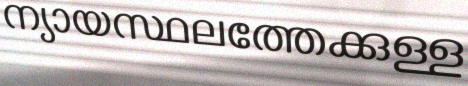
ന്യായസ്ഥലത്തേക്കുള്ള